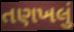
તણખલું